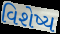
વિશેષ્ય